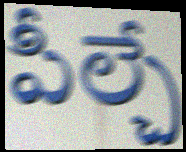
పీల్చే